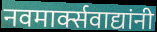
नवमार्क्सवाद्यांनी